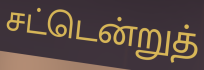
சட்டென்றுத்